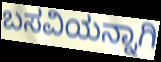
ಬಸವಿಯನ್ನಾಗಿ